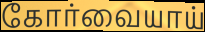
கோர்வையாய்